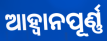
ଆହ୍ବାନପୂର୍ଣ୍ଣ